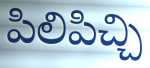
పిలిపిచ్చి